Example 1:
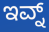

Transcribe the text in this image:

ಇವ್ನ್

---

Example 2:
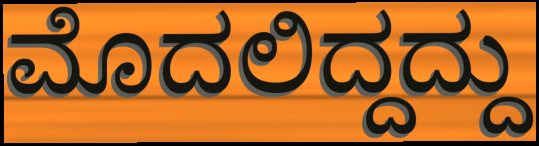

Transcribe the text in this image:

ಮೊದಲಿದ್ದದ್ದು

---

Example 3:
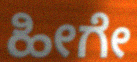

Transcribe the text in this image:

ಹೀಗೇ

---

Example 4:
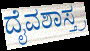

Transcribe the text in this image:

ದೈವಶಾಸ್ತ್ರ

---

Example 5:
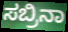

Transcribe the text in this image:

ಸಬ್ರಿನಾ